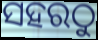
ସହରଠୁ